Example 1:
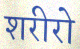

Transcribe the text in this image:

शरीरो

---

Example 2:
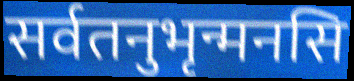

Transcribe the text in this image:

सर्वतनुभृन्मनसि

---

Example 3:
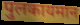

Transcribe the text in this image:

पुलकायमान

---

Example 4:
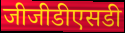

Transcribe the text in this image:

जीजीडीएसडी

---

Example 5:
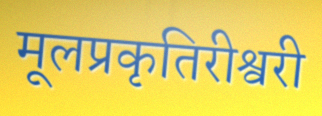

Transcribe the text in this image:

मूलप्रकृतिरीश्वरी